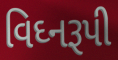
વિઘ્નરૂપી